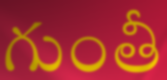
గుంతీ